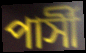
পার্সী